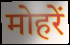
मोहरें